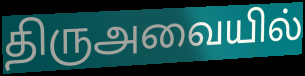
திருஅவையில்